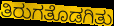
ತಿರುಗತೊಡಗಿತು